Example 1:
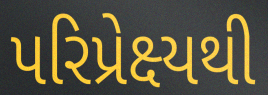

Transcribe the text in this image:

પરિપ્રેક્ષ્યથી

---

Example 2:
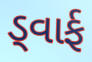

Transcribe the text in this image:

ડ્વાર્ફ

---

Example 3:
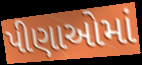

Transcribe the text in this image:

પીણાઓમાં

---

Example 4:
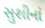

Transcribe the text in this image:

સુશીનાં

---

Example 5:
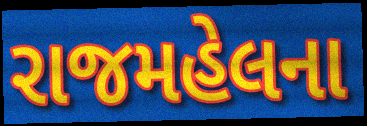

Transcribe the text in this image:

રાજમહેલના